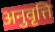
अनुवृत्ति